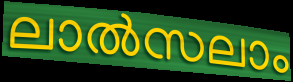
ലാൽസലാം